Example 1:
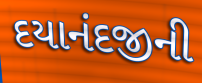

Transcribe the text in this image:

દયાનંદજીની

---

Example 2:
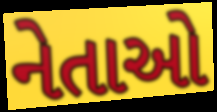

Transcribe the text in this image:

નેતાઓ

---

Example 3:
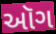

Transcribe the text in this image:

ઑગ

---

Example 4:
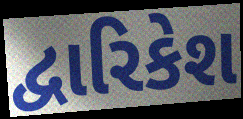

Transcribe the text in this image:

દ્વારિકેશ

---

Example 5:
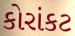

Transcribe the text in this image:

કોરાંકટ